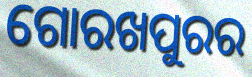
ଗୋରଖପୁରର